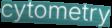
cytometry